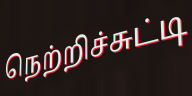
நெற்றிச்சுட்டி